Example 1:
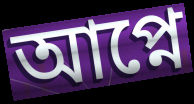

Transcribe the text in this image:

আপ্নে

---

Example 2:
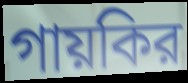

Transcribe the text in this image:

গায়কির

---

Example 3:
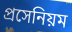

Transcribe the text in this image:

প্রসেনিয়ম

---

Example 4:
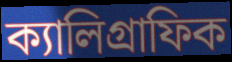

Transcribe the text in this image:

ক্যালিগ্রাফিক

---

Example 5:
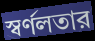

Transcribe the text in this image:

স্বর্ণলতার